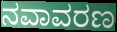
ನವಾವರಣ